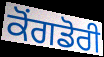
ਕੋਂਗਡੋਰੀ